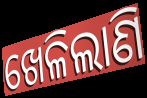
ଖେଳିଲାଣି